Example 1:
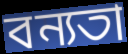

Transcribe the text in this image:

বন্যতা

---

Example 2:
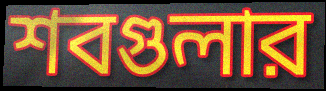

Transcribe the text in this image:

শবগুলার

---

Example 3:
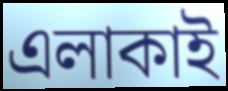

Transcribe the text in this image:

এলাকাই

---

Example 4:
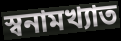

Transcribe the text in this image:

স্বনামখ্যাত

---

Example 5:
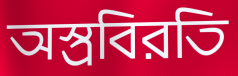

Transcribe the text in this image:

অস্ত্রবিরতি